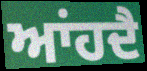
ਆਂਹਦੈ